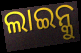
ଲାଇନ୍କୁ